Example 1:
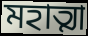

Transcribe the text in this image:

মহাত্মা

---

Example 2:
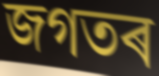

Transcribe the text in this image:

জগতৰ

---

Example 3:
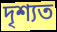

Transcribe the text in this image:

দৃশ্যত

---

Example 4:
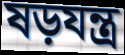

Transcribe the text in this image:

ষড়যন্ত্ৰ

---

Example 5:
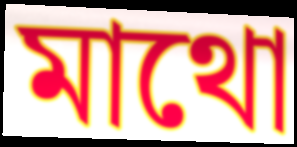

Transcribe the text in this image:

মাথো